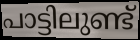
പാട്ടിലുണ്ട്